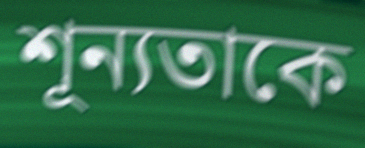
শূন্যতাকে